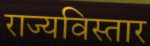
राज्यविस्तार